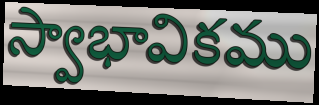
స్వాభావికము